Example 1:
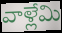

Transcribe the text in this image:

వాళ్లేమి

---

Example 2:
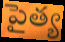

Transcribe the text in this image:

పైత్య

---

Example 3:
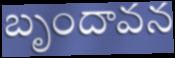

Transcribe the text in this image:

బృందావన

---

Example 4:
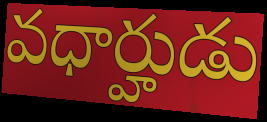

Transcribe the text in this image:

వధార్హుడు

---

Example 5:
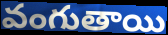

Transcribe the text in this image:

వంగుతాయి